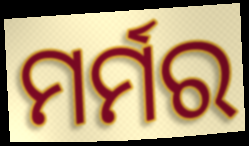
ମର୍ମର